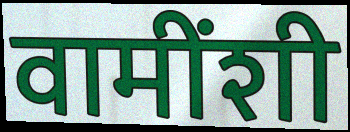
वामींशी